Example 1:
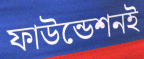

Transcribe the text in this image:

ফাউন্ডেশনই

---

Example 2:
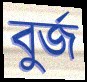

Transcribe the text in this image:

বুর্জ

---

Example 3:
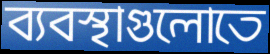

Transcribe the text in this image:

ব্যবস্থাগুলোতে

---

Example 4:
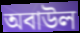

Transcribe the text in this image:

অবাউল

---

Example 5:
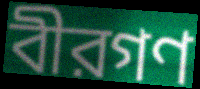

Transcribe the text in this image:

বীরগণ